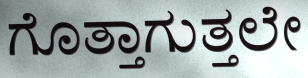
ಗೊತ್ತಾಗುತ್ತಲೇ